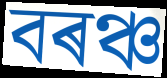
বৰঞ্চ